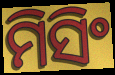
ମିସିଂ